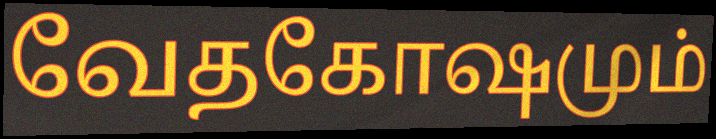
வேதகோஷமும்